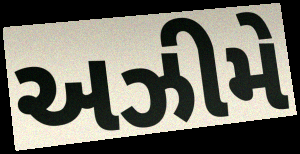
અઝીમે